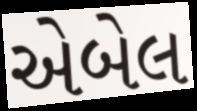
એબેલ